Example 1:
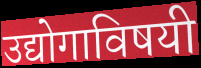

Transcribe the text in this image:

उद्योगाविषयी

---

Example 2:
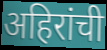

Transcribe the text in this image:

अहिरांची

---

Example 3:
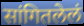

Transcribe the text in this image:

सांगितलेलं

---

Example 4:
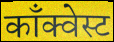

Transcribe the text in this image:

काँक्वेस्ट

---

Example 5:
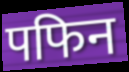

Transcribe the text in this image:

पफिन